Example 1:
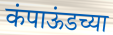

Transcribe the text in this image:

कंपाऊंडच्या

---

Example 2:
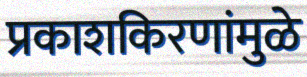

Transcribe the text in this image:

प्रकाशकिरणांमुळे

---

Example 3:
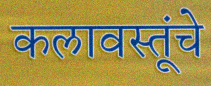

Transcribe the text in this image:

कलावस्तूंचे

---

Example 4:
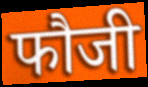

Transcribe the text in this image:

फौजी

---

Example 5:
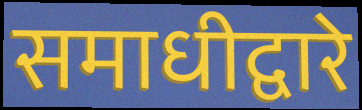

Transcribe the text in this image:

समाधीद्वारे